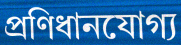
প্ৰণিধানযোগ্য